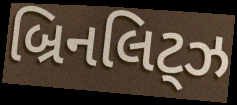
બ્રિનલિટ્ઝ